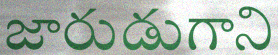
జారుడుగాని